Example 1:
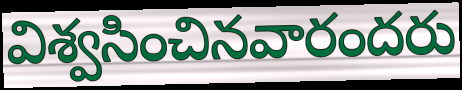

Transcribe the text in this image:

విశ్వసించినవారందరు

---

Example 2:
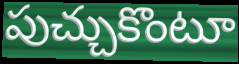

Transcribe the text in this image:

పుచ్చుకొంటూ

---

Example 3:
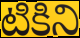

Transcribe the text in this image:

టికిని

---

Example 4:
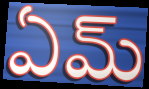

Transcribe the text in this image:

ఏమ్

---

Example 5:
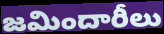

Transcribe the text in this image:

జమిందారీలు